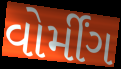
વોર્મીંગ